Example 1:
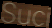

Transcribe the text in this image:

Suci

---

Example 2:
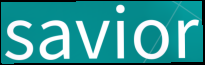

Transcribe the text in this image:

savior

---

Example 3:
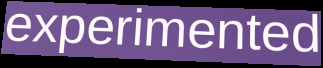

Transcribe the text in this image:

experimented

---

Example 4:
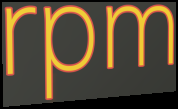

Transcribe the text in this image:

rpm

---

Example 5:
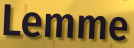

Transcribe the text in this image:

Lemme